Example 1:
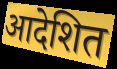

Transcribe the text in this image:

आदेशित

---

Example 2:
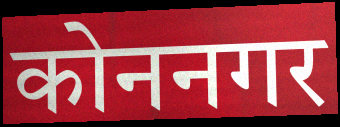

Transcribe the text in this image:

कोननगर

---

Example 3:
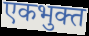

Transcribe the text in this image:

एकभुक्त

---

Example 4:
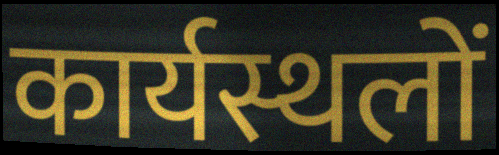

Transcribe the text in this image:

कार्यस्थलों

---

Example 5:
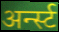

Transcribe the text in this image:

अर्न्स्ट